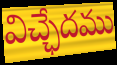
విచ్ఛేదము